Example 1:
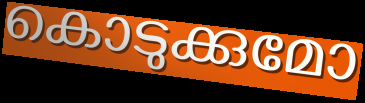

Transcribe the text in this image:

കൊടുക്കുമോ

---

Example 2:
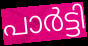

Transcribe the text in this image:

പാർട്ടി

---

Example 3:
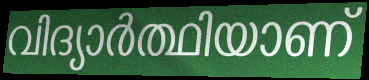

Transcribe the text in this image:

വിദ്യാർത്ഥിയാണ്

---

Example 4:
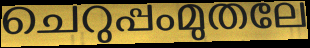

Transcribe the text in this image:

ചെറുപ്പംമുതലേ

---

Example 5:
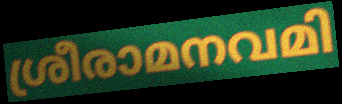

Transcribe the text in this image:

ശ്രീരാമനവമി